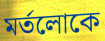
মর্তলোকে